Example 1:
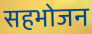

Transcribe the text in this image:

सहभोजन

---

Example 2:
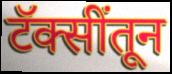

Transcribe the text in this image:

टॅक्सींतून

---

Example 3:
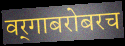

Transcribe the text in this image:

वर्गाबरोबरच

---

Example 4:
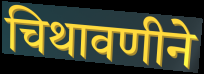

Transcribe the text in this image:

चिथावणीने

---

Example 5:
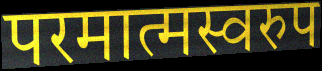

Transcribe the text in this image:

परमात्मस्वरुप